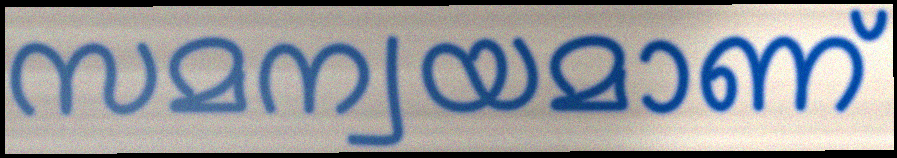
സമന്വയമാണ്